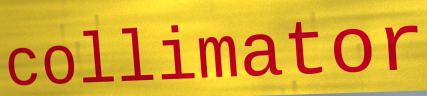
collimator